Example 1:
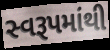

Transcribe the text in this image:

સ્વરૂપમાંથી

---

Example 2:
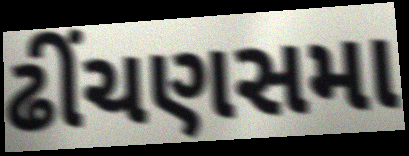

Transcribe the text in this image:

ઢીંચણસમા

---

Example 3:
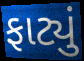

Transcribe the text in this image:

ફાટ્યું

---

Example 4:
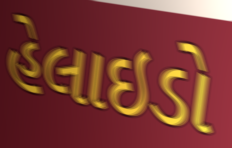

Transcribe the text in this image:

હેલાઇડો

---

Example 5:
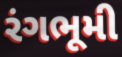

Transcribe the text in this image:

રંગભૂમી